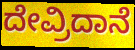
ದೇವ್ರಿದಾನೆ